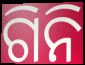
ଗିନି